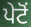
ਪੇਟੋਂ